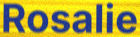
Rosalie